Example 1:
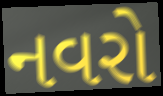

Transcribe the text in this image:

નવરો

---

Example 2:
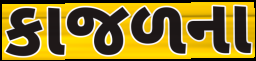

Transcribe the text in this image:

કાજળના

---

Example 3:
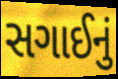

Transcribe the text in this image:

સગાઈનું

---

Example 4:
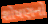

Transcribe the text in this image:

શોષણનો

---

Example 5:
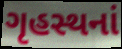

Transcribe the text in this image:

ગૃહસ્થનાં